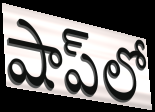
షాప్‌లో